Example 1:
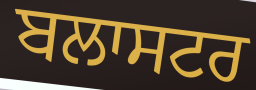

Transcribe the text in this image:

ਬਲਾਸਟਰ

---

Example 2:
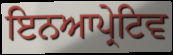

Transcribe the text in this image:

ਇਨਆਪ੍ਰੇਟਿਵ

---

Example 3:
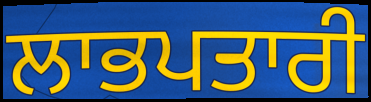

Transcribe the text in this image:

ਲਾਭਪਤਾਰੀ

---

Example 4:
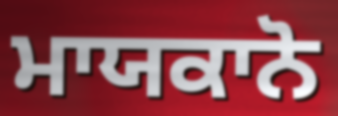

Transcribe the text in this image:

ਮਾਯਕਾਨੋ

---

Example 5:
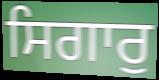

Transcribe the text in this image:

ਸਿਗਾਰੁ